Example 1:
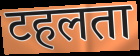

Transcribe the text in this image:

टहलता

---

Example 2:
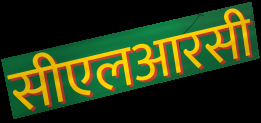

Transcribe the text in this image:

सीएलआरसी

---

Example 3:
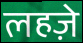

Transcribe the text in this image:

लहज़े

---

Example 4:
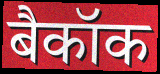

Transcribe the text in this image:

बैकॉक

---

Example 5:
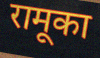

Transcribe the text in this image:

रामूका